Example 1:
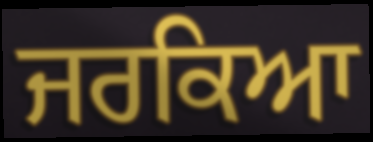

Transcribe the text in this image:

ਜਰਕਿਆ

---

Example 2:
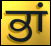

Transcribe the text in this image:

ਭਾਂ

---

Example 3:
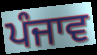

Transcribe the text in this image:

ਪੰਜਾਵ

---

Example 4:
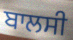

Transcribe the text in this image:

ਬਾਲਸੀ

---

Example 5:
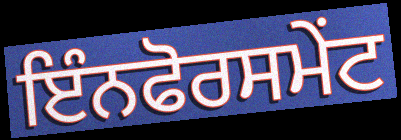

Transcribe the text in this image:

ਇੰਨਫੋਰਸਮੇਂਟ